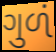
ગુળં